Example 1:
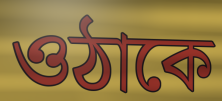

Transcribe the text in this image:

ওঠাকে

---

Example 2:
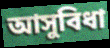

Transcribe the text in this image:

আসুবিধা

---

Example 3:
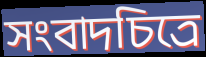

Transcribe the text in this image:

সংবাদচিত্রে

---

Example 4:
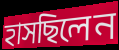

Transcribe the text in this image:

হাসছিলেন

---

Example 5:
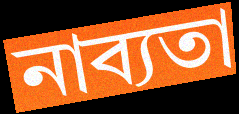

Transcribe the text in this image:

নাব্যতা